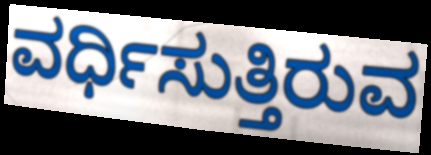
ವರ್ಧಿಸುತ್ತಿರುವ